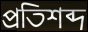
প্ৰতিশব্দ